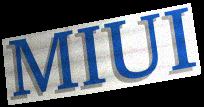
MIUI